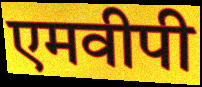
एमवीपी